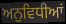
ਅਨੁਵਿਧੀਆਂ